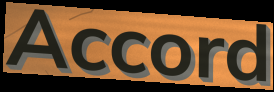
Accord